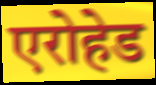
एरोहेड